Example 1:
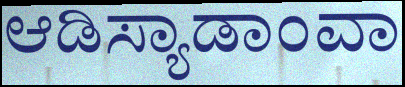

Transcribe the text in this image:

ಆಡಿಸ್ಯಾಡಾಂವಾ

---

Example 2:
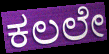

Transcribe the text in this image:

ಕಲಲೇ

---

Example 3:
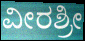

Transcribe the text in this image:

ವೀರಶ್ರೀ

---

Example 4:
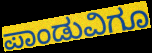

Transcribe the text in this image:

ಪಾಂಡುವಿಗೂ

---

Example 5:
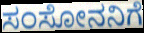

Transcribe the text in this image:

ಸಂಸೋನನಿಗೆ